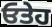
ਓਤੇਹ